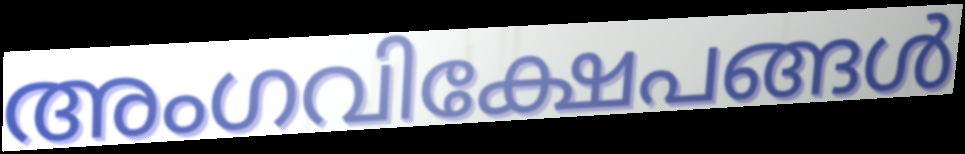
അംഗവിക്ഷേപങ്ങൾ